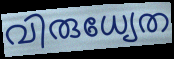
വിരുധ്യേത